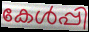
കേൾപ്പി